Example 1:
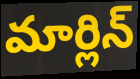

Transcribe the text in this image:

మార్లిన్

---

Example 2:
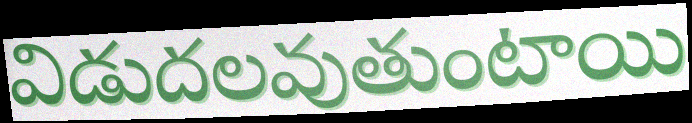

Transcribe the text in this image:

విడుదలవుతుంటాయి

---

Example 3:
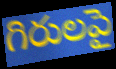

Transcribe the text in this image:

గిరులపై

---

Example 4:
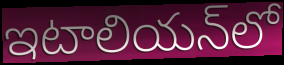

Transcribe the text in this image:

ఇటాలియన్‌లో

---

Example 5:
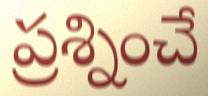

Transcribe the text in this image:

ప్రశ్నించే